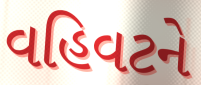
વહિવટને